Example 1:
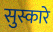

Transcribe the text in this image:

सुस्कारे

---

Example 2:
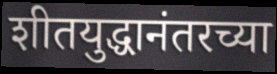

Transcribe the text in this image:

शीतयुद्धानंतरच्या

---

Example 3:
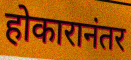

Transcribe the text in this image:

होकारानंतर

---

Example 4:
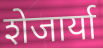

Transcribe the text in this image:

शेजार्या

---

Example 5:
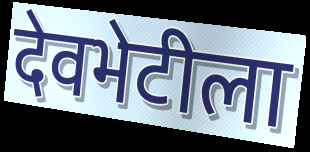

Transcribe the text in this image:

देवभेटीला